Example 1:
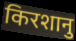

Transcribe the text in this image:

किरशानु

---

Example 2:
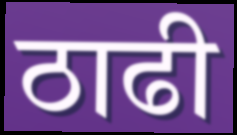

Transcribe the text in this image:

ठाढी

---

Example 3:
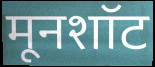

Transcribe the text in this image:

मूनशॉट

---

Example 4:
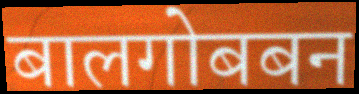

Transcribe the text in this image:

बालगोबबन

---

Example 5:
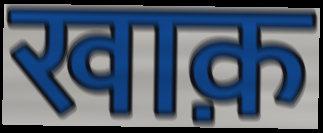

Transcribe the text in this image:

खाक़